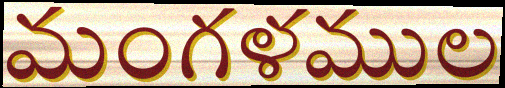
మంగళముల